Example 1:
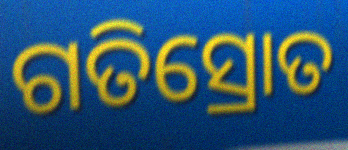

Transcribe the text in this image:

ଗତିସ୍ରୋତ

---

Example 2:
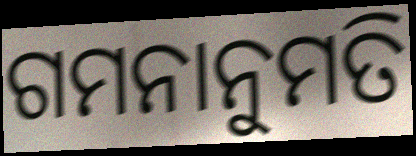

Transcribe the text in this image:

ଗମନାନୁମତି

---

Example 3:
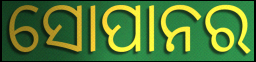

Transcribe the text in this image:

ସୋପାନର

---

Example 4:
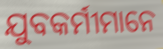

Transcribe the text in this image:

ଯୁବକର୍ମୀମାନେ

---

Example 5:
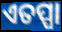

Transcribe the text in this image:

ଏତପ୍ପା